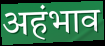
अहंभाव